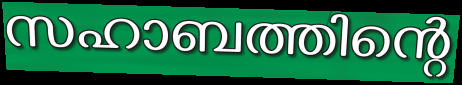
സഹാബത്തിന്റെ